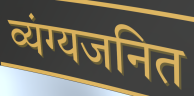
व्यंग्यजनित